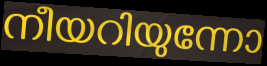
നീയറിയുന്നോ